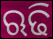
ଋଢି